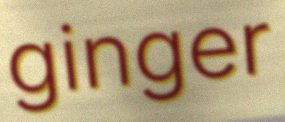
ginger